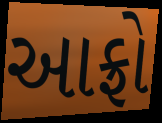
આફ્રો